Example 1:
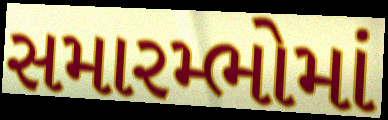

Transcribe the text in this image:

સમારમ્ભોમાં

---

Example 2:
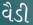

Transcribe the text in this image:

વૈડી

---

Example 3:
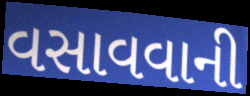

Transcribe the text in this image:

વસાવવાની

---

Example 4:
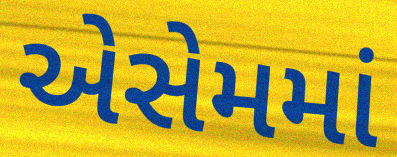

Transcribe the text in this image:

એસેમમાં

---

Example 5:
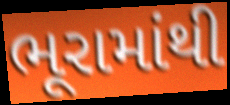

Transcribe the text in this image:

ભૂરામાંથી